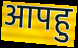
आपहु